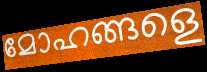
മോഹങ്ങളെ